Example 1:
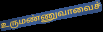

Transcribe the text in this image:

உருமண்ணுவாவைச்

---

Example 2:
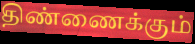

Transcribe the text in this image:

திண்ணைக்கும்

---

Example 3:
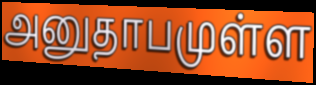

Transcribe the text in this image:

அனுதாபமுள்ள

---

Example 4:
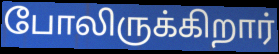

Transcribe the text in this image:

போலிருக்கிறார்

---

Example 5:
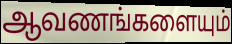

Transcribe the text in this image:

ஆவணங்களையும்